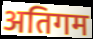
अतिगम